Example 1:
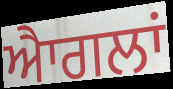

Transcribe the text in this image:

ਐਾਗਲਾਂ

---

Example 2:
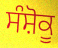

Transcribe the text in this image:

ਸੰਸ਼ੋਕੂ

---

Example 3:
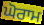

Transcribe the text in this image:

ਘੋਰਾਮ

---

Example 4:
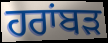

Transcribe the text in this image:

ਹਰਾਂਬੜ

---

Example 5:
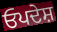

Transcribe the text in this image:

ਓਪਦੇਸ਼